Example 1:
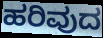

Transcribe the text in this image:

ಹರಿವುದ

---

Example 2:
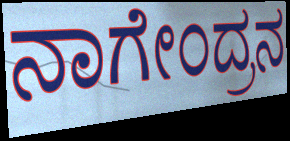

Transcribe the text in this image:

ನಾಗೇಂದ್ರನ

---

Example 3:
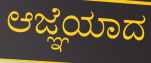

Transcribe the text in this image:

ಆಜ್ಞೆಯಾದ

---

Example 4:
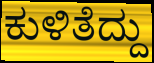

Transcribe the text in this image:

ಕುಳಿತೆದ್ದು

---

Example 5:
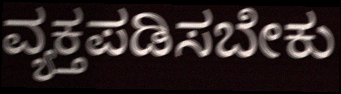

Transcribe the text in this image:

ವ್ಯಕ್ತಪಡಿಸಬೇಕು